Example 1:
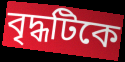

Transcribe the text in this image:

বৃদ্ধটিকে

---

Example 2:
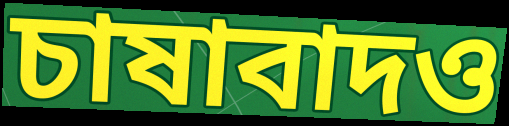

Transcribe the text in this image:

চাষাবাদও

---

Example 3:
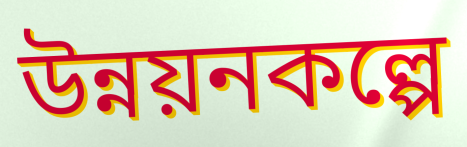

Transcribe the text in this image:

উন্নয়নকল্পে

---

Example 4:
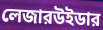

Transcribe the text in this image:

লেজারউইডার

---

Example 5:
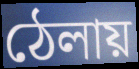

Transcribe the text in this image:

ঠেলায়